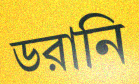
ডরানি